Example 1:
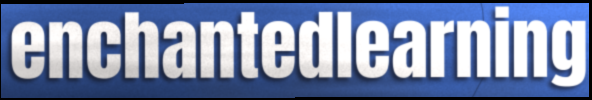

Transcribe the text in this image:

enchantedlearning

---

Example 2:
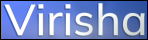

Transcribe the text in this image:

Virisha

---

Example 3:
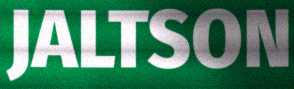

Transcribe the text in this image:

JALTSON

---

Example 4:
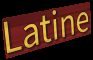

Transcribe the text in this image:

Latine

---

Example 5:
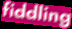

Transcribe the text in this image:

fiddling